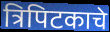
त्रिपिटकाचे